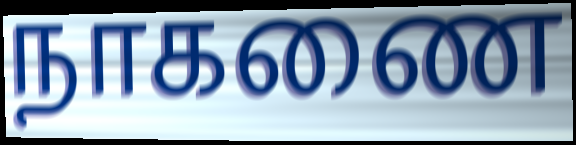
நாகணை